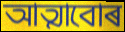
আত্মাবোৰ